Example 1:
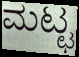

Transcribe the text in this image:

ಮಟ್ಟ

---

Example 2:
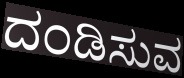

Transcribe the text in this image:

ದಂಡಿಸುವ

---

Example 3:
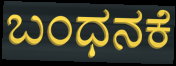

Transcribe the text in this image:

ಬಂಧನಕೆ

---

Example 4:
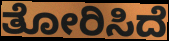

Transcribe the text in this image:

ತೋರಿಸಿದೆ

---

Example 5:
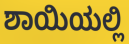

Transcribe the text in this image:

ಶಾಯಿಯಲ್ಲಿ